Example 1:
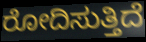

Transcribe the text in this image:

ರೋದಿಸುತ್ತಿದೆ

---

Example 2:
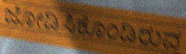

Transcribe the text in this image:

ಜೋಡಿಸಿಕೊಂಡಿರುವ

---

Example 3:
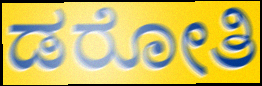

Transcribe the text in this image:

ಡರೋತಿ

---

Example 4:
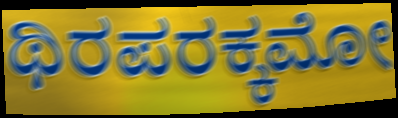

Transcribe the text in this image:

ಥಿರಪರಕ್ಕಮೋ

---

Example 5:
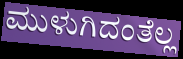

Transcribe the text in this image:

ಮುಳುಗಿದಂತೆಲ್ಲ